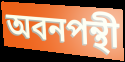
অবনপন্থী